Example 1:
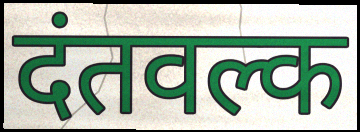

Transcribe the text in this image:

दंतवल्क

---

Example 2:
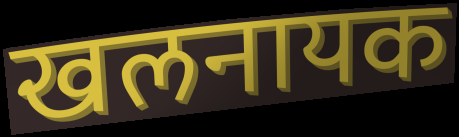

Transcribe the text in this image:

खलनायक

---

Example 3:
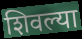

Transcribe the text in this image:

शिवल्या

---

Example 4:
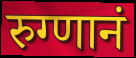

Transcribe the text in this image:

रुग्णानं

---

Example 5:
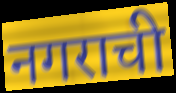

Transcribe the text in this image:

नगराची